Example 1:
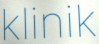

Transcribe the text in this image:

klinik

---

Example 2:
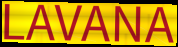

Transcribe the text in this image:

LAVANA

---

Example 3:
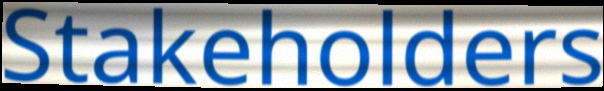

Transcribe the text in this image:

Stakeholders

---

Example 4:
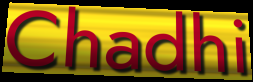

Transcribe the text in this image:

Chadhi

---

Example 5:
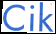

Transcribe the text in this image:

Cik